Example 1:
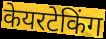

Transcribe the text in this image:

केयरटेकिंग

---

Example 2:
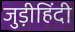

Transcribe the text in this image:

जुड़ीहिंदी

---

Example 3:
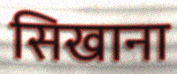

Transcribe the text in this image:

सिखाना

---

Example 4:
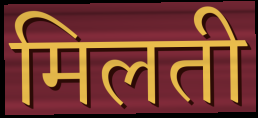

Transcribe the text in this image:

मिलती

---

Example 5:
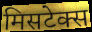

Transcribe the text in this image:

मिसटेक्स